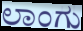
ಲಾಂಗು